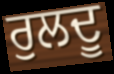
ਰੁਲਦੂ